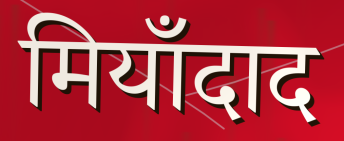
मियाँदाद